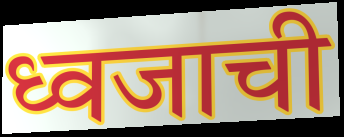
ध्वजाची